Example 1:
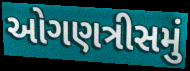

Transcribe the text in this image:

ઓગણત્રીસમું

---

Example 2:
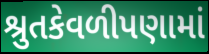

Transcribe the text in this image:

શ્રુતકેવળીપણામાં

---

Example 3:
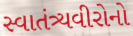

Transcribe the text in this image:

સ્વાતંત્ર્યવીરોનો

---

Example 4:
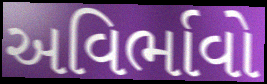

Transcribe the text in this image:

અવિર્ભાવો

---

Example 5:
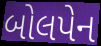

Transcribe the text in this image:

બોલપેન